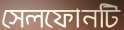
সেলফোনটি